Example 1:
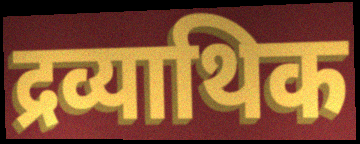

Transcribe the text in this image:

द्रव्याथिक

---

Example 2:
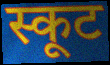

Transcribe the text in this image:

स्कूट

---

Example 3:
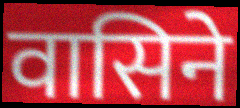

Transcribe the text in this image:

वासिने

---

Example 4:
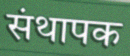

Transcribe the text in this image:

संथापक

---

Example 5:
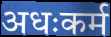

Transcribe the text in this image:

अधःकर्म